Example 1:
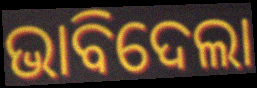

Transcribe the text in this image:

ଭାବିଦେଲା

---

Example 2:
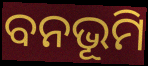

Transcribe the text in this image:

ବନଭୂମି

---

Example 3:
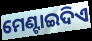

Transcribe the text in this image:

ମେଣ୍ଟାଇଦିଏ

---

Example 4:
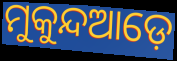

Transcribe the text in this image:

ମୁକୁନ୍ଦଆଡ଼େ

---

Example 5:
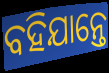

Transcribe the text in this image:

ବହିଯାନ୍ତେ